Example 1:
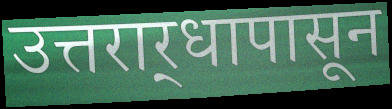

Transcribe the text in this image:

उत्तरार्धापासून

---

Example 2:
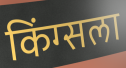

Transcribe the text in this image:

किंग्सला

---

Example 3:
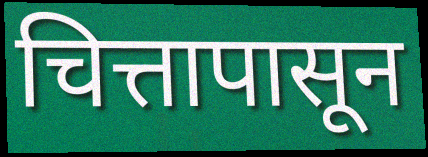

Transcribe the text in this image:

चित्तापासून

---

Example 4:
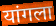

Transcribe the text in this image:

यांगला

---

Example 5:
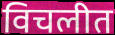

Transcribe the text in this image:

विचलीत